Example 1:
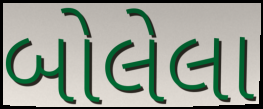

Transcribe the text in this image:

બોલેલા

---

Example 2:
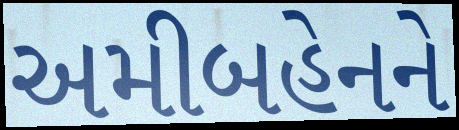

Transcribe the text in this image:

અમીબહેનને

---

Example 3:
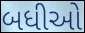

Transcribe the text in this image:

બધીઓ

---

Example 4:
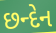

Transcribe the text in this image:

છન્દેન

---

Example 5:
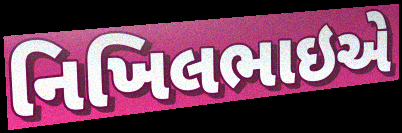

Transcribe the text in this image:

નિખિલભાઇએ